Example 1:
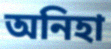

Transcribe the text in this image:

অনিহা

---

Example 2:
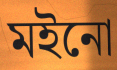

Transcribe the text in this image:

মইনো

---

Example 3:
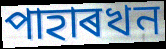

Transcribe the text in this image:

পাহাৰখন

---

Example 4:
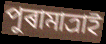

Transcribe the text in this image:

পুৰামাত্ৰাই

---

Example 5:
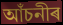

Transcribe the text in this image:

আঁচনীৰ